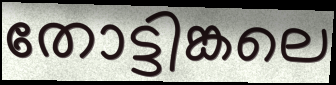
തോട്ടിങ്കലെ